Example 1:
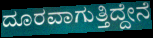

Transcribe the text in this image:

ದೂರವಾಗುತ್ತಿದ್ದೇನೆ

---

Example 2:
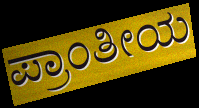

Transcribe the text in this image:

ಪ್ರಾಂತೀಯ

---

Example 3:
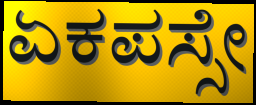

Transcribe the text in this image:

ಏಕಪಸ್ಸೇ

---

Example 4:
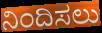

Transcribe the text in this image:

ನಿಂದಿಸಲು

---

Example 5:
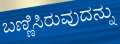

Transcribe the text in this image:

ಬಣ್ಣಿಸಿರುವುದನ್ನು